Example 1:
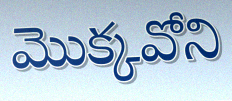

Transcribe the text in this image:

మొక్కవోని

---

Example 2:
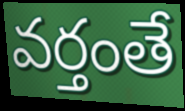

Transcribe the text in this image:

వర్తంతే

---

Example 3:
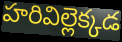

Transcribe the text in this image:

హరివిల్లెక్కడ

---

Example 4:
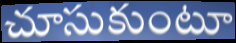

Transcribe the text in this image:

చూసుకుంటూ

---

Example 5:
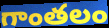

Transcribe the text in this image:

గాంతలం